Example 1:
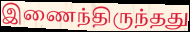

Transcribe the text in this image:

இணைந்திருந்தது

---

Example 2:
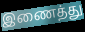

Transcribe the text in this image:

இணைத்து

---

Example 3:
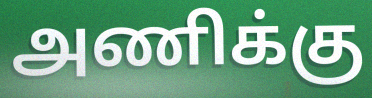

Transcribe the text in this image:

அணிக்கு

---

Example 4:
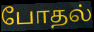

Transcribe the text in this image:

போதல்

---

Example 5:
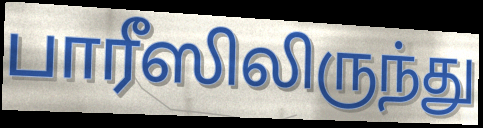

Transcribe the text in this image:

பாரீஸிலிருந்து